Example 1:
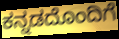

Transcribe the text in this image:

ಕನ್ನಡದೊಂದಿಗೆ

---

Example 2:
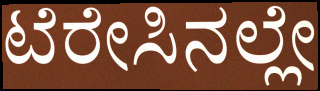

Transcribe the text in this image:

ಟೆರೇಸಿನಲ್ಲೇ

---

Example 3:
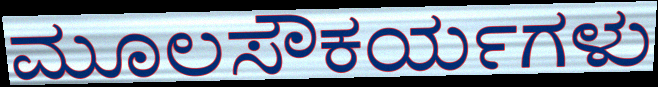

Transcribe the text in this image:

ಮೂಲಸೌಕರ್ಯಗಳು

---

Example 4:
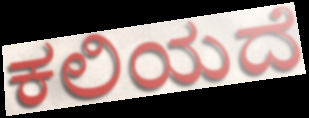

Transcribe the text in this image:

ಕಲಿಯದೆ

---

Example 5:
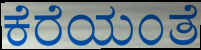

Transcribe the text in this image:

ಕೆರೆಯಂತೆ